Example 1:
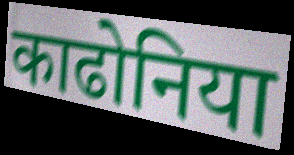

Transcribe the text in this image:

काढोनिया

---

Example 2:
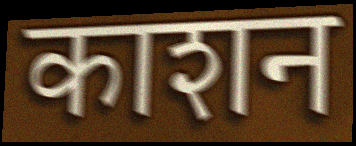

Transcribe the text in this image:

काशन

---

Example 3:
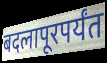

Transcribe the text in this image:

बदलापूरपर्यंत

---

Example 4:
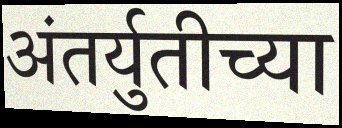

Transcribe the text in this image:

अंतर्युतीच्या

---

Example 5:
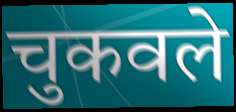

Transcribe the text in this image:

चुकवले